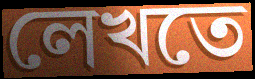
লেখতে